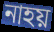
নাহয়